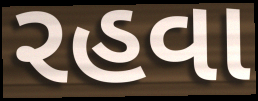
રહવા